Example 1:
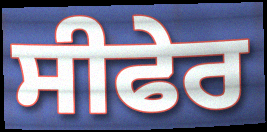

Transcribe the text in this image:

ਸੀਫੇਰ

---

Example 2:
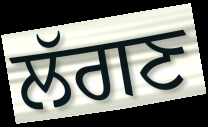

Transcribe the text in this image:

ਲੱਗਣ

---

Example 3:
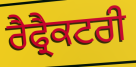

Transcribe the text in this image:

ਰੈਫ੍ਰੈਕਟਰੀ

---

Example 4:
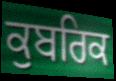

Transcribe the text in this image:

ਕੁਬਰਿਕ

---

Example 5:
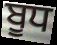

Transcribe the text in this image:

ਬੂਧ